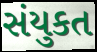
સંયુકત